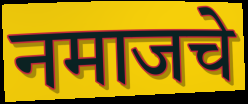
नमाजचे